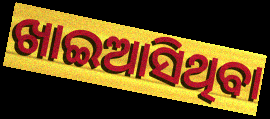
ଖାଇଆସିଥିବା